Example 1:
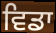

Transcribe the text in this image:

ਵਿਡਾ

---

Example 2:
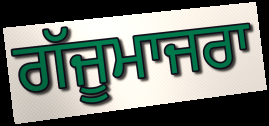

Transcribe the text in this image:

ਗੱਜੂਮਾਜਰਾ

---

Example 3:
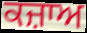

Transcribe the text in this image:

ਕਜ਼ਾਅ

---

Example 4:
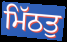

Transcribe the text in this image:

ਮਿੱਠਤੁ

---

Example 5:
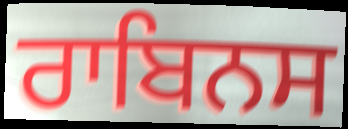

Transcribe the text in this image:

ਰਾਬਿਨਸ